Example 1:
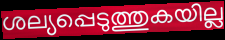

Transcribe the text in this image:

ശല്യപ്പെടുത്തുകയില്ല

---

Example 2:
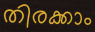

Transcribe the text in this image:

തിരക്കാം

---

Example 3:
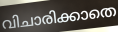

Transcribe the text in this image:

വിചാരിക്കാതെ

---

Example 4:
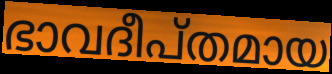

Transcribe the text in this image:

ഭാവദീപ്തമായ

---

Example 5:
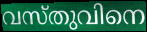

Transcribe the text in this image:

വസ്തുവിനെ